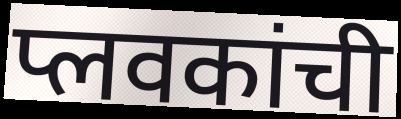
प्लवकांची